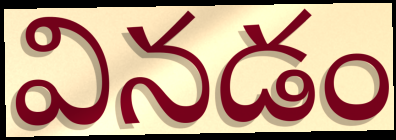
వినడం